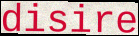
disire